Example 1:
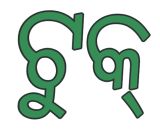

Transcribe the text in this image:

ଟୁକ୍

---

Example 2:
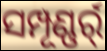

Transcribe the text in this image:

ସମ୍ପୂଣ୍ଣର୍ର୍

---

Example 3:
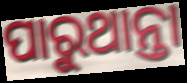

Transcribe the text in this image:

ପାରୁଥାନ୍ତା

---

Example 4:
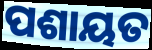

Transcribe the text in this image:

ପଶାୟତ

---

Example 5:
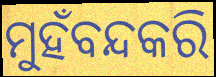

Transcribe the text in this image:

ମୁହଁବନ୍ଦକରି